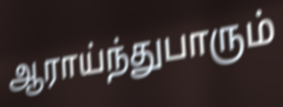
ஆராய்ந்துபாரும்